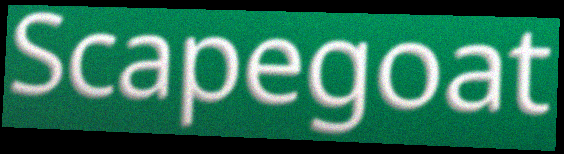
Scapegoat